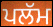
ਪਲੱਮ